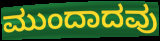
ಮುಂದಾದವು